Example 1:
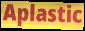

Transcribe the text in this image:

Aplastic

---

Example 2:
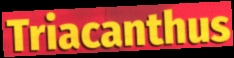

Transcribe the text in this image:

Triacanthus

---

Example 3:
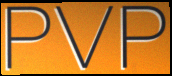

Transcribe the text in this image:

PVP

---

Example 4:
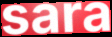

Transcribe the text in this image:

sara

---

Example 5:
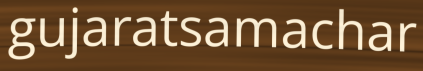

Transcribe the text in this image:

gujaratsamachar